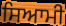
ਸਿਆਮੀ